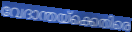
വേദാന്തയ്ക്കെതിരെ